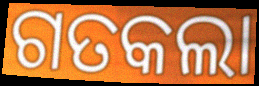
ଗତକଲା